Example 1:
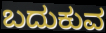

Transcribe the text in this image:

ಬದುಕುವ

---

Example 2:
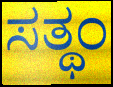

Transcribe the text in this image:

ಸತ್ಥಂ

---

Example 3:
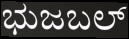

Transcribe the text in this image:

ಭುಜಬಲ್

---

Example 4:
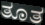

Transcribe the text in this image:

ತೂತ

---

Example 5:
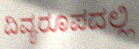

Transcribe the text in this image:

ದಿವ್ಯರೂಪದಲ್ಲಿ